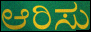
ಆರಿಸು